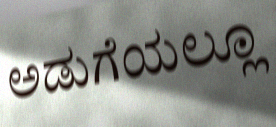
ಅಡುಗೆಯಲ್ಲೂ